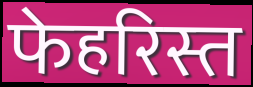
फेहरिस्‍त